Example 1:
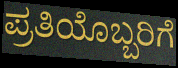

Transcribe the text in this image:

ಪ್ರತಿಯೊಬ್ಬರಿಗೆ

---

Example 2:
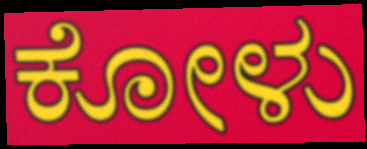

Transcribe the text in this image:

ಕೋಳು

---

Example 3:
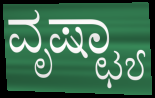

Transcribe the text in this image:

ವೃಷ್ಟ್ಯಾ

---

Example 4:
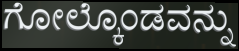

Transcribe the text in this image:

ಗೋಲ್ಕೊಂಡವನ್ನು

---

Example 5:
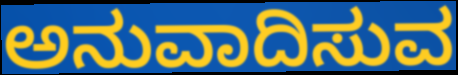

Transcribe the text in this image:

ಅನುವಾದಿಸುವ